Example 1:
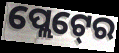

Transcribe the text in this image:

ପ୍ଲେଟ୍‍ରେ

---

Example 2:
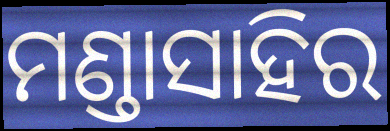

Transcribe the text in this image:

ମଣ୍ଡାସାହିର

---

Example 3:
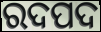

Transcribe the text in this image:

ରଦପଦ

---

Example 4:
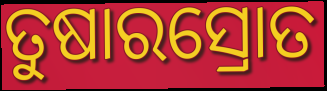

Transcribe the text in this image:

ତୁଷାରସ୍ରୋତ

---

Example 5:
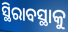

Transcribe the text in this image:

ସ୍ଥିରାବସ୍ଥାକୁ